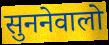
सुननेवालो